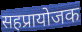
सहप्रायोजक